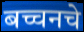
बच्चनचे